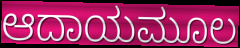
ಆದಾಯಮೂಲ